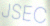
JSEC